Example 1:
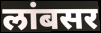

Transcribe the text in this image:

लांबसर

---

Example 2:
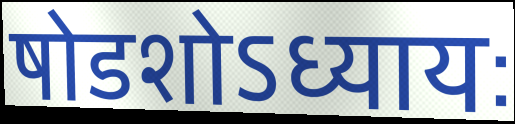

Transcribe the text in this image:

षोडशोऽध्यायः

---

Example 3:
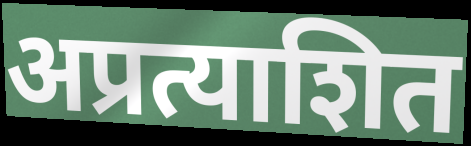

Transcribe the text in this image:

अप्रत्याशित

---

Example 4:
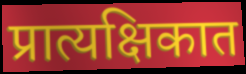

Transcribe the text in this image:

प्रात्यक्षिकात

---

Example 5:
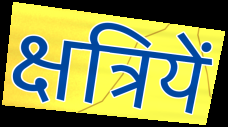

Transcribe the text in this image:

क्षत्रियें